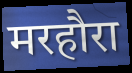
मरहौरा